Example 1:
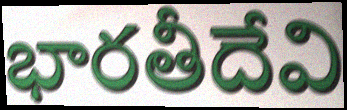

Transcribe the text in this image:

భారతీదేవి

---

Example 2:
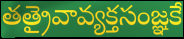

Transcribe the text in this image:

తత్రైవావ్యక్తసంజ్ఞకే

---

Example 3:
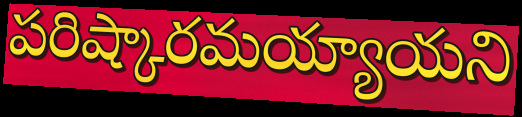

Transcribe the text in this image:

పరిష్కారమయ్యాయని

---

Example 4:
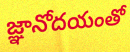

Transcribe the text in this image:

జ్ఞానోదయంతో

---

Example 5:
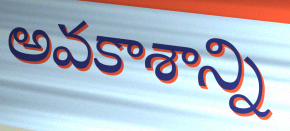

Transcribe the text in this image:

అవకాశాన్ని